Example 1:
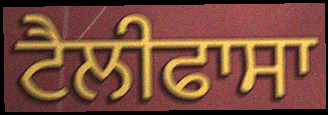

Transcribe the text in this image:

ਟੈਲੀਫਾਸਾ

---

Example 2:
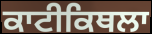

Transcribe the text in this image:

ਕਾਟੀਕਿਥਲਾ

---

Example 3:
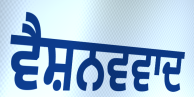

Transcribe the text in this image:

ਵੈਸ਼ਨਵਵਾਦ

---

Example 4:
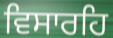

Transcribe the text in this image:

ਵਿਸਾਰਹਿ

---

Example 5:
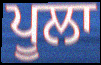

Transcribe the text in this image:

ਪੂਲਾ